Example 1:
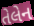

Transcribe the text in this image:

તેલેન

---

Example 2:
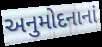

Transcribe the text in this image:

અનુમોદનાનાં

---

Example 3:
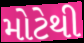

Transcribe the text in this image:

મોટેથી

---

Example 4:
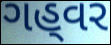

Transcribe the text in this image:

ગહ્‌વર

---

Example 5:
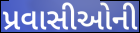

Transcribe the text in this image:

પ્રવાસીઓની